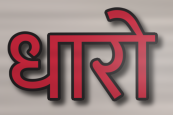
धारो